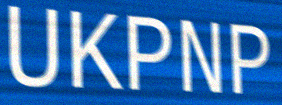
UKPNP